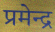
प्रमेन्द्र